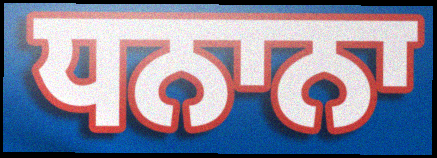
ਧਨਾਨਾ